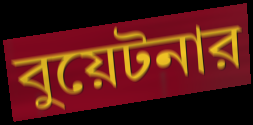
বুয়েটনার